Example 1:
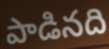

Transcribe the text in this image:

పాడినది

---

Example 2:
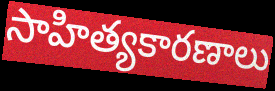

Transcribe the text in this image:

సాహిత్యకారణాలు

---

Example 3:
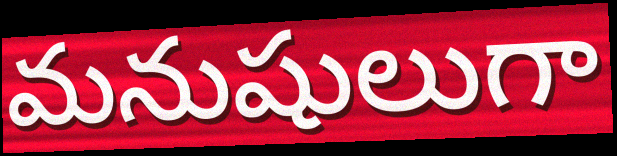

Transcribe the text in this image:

మనుషులుగా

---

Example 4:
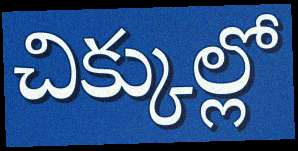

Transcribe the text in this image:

చిక్కుల్లో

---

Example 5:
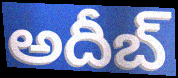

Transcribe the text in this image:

అదీబ్